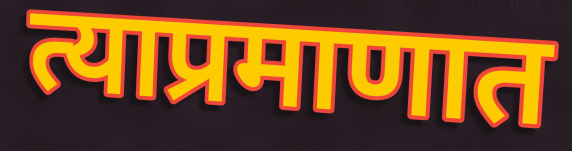
त्याप्रमाणात